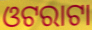
ଓଟରାଟା